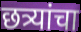
छत्र्यांचा